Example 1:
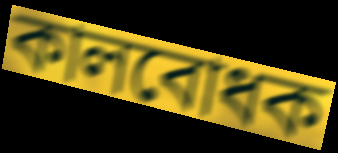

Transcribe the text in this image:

কালবোধক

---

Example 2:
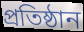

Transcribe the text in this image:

প্ৰতিষ্ঠান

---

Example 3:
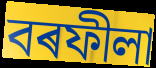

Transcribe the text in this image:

বৰফীলা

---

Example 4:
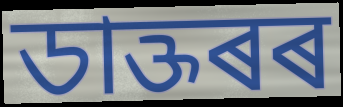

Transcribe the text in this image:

ডাক্তৰৰ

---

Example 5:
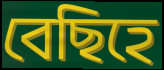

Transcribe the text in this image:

বেছিহে